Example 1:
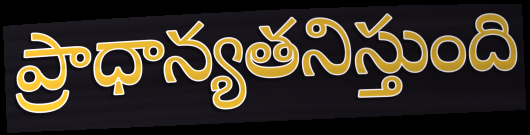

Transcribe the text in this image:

ప్రాధాన్యతనిస్తుంది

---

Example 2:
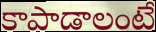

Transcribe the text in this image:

కాపాడాలంటే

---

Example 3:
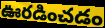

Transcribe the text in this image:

ఊరడించడం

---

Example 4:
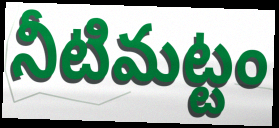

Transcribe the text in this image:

నీటిమట్టం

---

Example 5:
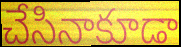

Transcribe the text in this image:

చేసినాకూడా